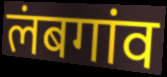
लंबगांव